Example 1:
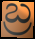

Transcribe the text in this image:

బ్ర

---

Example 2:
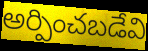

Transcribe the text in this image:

అర్పించబడేవి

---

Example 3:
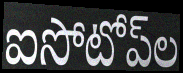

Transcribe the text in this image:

ఐసోటోప్‌ల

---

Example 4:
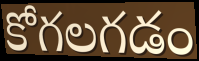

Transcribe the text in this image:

కోగలగడం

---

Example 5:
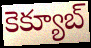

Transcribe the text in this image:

కెక్యూబ్